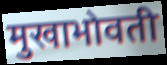
मुखाभोवती